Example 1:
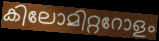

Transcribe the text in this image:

കിലോമിറ്ററോളം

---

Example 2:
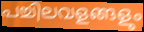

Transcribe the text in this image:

പച്ചിലവളങ്ങളും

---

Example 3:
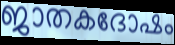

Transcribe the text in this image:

ജാതകദോഷം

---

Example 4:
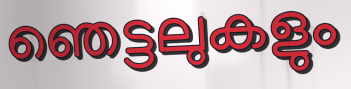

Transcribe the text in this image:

ഞെട്ടലുകളും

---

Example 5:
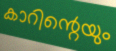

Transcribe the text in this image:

കാറിന്റെയും